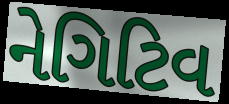
નેગિટિવ